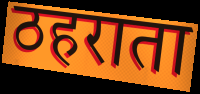
ठहराता